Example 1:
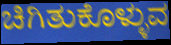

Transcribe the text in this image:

ಚಿಗಿತುಕೊಳ್ಳುವ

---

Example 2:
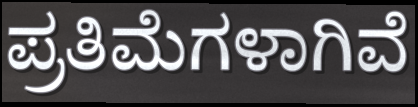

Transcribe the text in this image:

ಪ್ರತಿಮೆಗಳಾಗಿವೆ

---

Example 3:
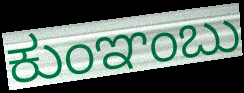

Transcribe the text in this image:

ಕುಂಞಂಬು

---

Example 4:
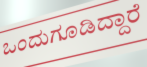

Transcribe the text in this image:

ಒಂದುಗೂಡಿದ್ದಾರೆ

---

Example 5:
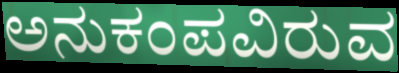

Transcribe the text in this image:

ಅನುಕಂಪವಿರುವ